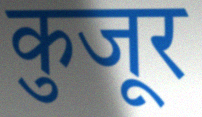
कुजूर